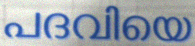
പദവിയെ